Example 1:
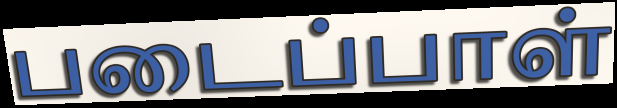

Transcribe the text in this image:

படைப்பாள்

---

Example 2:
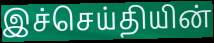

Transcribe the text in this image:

இச்செய்தியின்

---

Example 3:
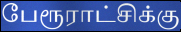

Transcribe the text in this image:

பேரூராட்சிக்கு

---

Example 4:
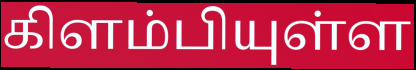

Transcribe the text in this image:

கிளம்பியுள்ள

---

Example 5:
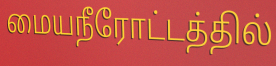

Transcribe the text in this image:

மையநீரோட்டத்தில்